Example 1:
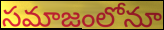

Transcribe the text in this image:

సమాజంలోనూ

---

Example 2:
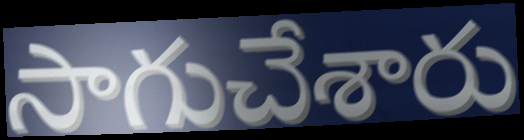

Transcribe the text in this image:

సాగుచేశారు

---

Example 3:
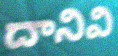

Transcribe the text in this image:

దానివి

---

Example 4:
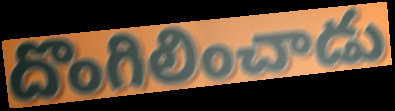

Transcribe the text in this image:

దొంగిలించాడు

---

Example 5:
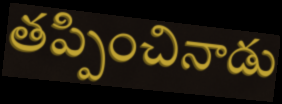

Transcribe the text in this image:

తప్పించినాడు